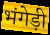
भंगेड़ी